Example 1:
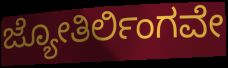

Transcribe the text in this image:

ಜ್ಯೋತಿರ್ಲಿಂಗವೇ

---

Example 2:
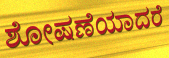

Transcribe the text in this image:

ಶೋಷಣೆಯಾದರೆ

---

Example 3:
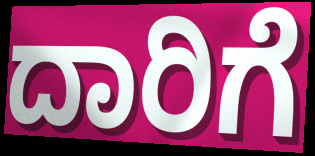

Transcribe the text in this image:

ದಾರಿಗೆ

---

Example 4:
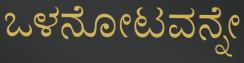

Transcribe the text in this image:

ಒಳನೋಟವನ್ನೇ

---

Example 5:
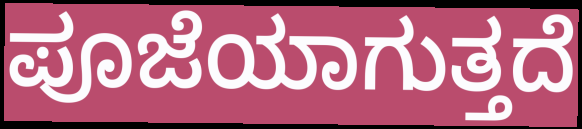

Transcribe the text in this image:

ಪೂಜೆಯಾಗುತ್ತದೆ